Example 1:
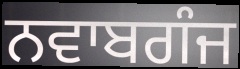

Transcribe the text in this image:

ਨਵਾਬਗੰਜ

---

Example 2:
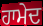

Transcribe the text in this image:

ਹਾਮੇਦ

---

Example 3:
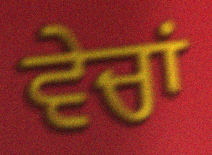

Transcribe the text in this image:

ਵੇਚਾਂ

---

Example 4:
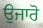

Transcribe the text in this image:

ਉਜਾਰੋ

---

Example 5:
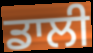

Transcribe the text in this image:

ਡਾਲੀ